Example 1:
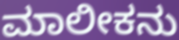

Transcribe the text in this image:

ಮಾಲೀಕನು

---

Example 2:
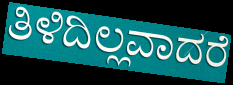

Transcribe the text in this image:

ತಿಳಿದಿಲ್ಲವಾದರೆ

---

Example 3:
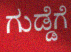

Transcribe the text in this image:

ಗುಡ್ಡೆಗೆ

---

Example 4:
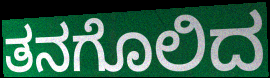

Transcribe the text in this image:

ತನಗೊಲಿದ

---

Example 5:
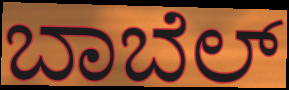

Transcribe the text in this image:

ಬಾಬೆಲ್